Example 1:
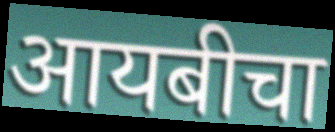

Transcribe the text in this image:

आयबीचा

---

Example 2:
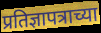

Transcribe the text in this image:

प्रतिज्ञापत्राच्या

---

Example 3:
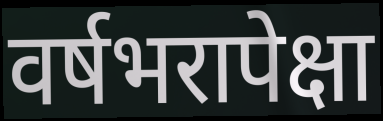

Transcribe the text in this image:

वर्षभरापेक्षा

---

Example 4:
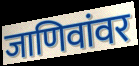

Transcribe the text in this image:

जाणिवांवर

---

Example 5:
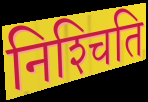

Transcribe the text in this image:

निश्चिति